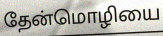
தேன்மொழியை